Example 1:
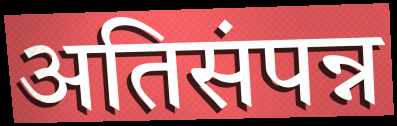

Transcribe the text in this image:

अतिसंपन्न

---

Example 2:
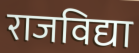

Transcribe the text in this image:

राजविद्या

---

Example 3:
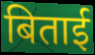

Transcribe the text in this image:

बिताई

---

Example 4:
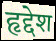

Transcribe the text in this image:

हृद्देश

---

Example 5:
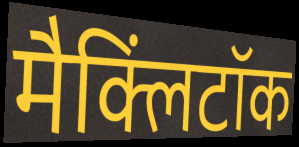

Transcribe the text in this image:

मैक्लिंटॉक